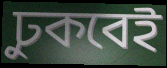
ঢুকবেই